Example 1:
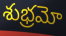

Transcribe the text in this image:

శుభ్రమో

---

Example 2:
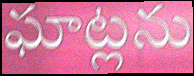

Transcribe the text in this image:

ఘాట్లను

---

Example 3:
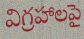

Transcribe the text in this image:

విగ్రహాలపై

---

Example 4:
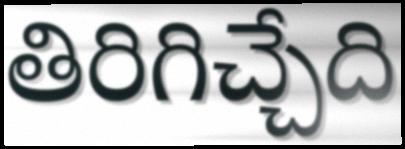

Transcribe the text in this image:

తిరిగిచ్చేది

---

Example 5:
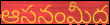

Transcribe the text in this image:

ఆసనంమీద